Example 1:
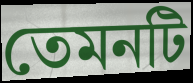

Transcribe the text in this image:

তেমনটি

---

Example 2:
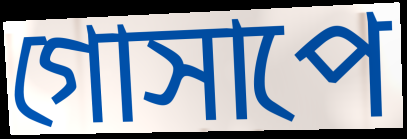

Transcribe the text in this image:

গোসাপে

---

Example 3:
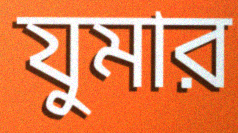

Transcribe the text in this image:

যুমার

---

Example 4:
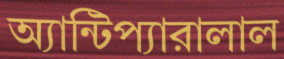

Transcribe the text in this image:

অ্যান্টিপ্যারালাল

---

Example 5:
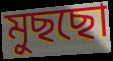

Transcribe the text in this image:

মুছছো